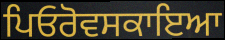
ਪਿਓਰੋਵਸਕਾਇਆ